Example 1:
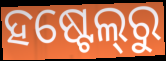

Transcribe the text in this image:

ହଷ୍ଟେଲ୍‍ରୁ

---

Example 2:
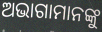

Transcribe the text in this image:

ଅଭାଗାମାନଙ୍କୁ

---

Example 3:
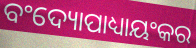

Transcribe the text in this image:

ବଂଦ୍ୟୋପାଧ୍ୟାୟଂକର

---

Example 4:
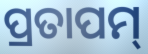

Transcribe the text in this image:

ପ୍ରତାପମ୍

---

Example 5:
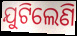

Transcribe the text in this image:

ଯୁଟିଲେଣି